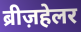
ब्रीज़हेलर